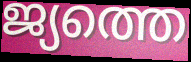
ജ്യത്തെ